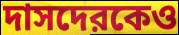
দাসদেরকেও